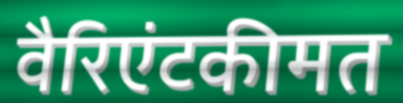
वैरिएंटकीमत